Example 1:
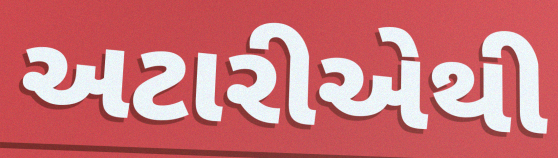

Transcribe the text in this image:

અટારીએથી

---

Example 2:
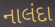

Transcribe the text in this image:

નાલંદા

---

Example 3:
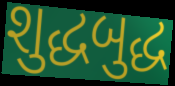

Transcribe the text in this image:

શુદ્ધબુદ્ધ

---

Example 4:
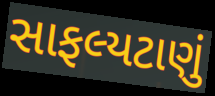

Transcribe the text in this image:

સાફલ્યટાણું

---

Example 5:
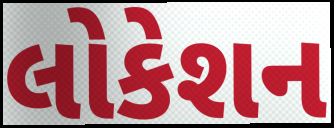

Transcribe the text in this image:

લોકેશન